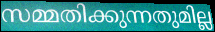
സമ്മതിക്കുന്നതുമില്ല